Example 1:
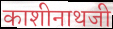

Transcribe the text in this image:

काशीनाथजी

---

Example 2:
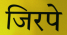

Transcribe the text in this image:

जिरपे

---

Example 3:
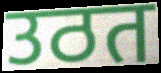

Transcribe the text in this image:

उठत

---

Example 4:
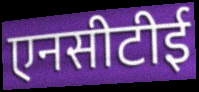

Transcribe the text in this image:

एनसीटीई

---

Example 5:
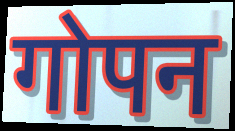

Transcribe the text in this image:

गोपन